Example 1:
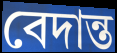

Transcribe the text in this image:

বেদান্ত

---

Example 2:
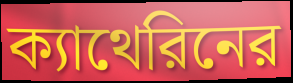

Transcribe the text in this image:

ক্যাথেরিনের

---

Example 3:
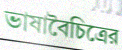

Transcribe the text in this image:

ভাষাবৈচিত্রের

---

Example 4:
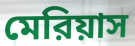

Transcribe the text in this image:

মেরিয়াস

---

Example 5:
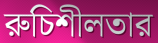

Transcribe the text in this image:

রুচিশীলতার